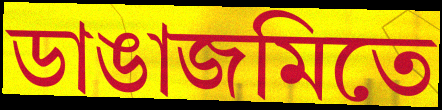
ডাঙাজমিতে